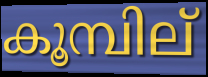
കൂമ്പില്